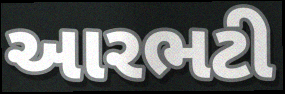
આરભટી